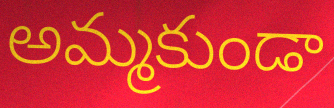
అమ్మకుండా